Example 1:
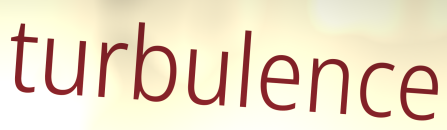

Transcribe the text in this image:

turbulence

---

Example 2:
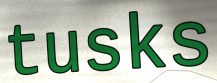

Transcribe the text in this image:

tusks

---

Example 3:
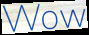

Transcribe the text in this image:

Wow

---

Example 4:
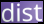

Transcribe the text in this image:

dist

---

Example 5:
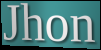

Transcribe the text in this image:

Jhon